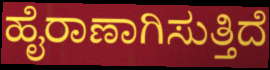
ಹೈರಾಣಾಗಿಸುತ್ತಿದೆ